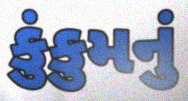
કુંકુમનું